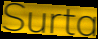
Surta